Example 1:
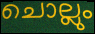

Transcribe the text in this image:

ചൊല്ലും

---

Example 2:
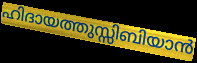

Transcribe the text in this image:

ഹിദായത്തുസ്സിബിയാൻ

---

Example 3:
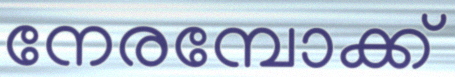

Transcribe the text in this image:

നേരമ്പോക്ക്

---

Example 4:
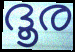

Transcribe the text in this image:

ദൂര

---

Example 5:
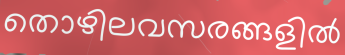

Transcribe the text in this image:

തൊഴിലവസരങ്ങളിൽ